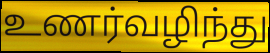
உணர்வழிந்து